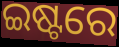
ଇଷ୍ଟରେ